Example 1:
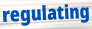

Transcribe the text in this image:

regulating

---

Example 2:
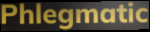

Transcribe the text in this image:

Phlegmatic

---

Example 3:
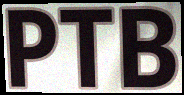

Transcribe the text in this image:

PTB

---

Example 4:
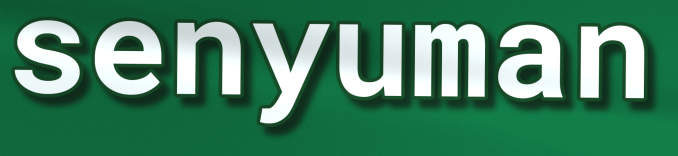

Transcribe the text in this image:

senyuman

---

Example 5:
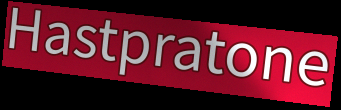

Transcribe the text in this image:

Hastpratone